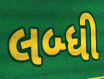
લબ્ધી